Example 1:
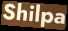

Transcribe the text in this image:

Shilpa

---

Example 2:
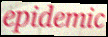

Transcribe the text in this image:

epidemic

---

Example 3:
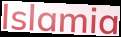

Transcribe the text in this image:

Islamia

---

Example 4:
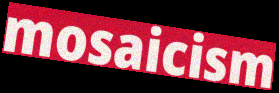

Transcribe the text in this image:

mosaicism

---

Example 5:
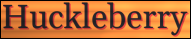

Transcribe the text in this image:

Huckleberry